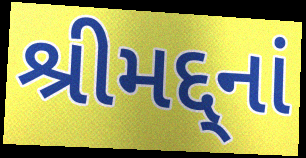
શ્રીમદ્દ્નાં